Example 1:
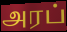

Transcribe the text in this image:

அரப்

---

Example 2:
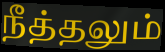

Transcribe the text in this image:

நீத்தலும்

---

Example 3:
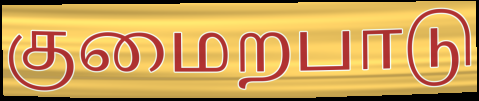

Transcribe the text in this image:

குமைறபாடு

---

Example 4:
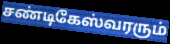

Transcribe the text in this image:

சண்டிகேஸ்வரரும்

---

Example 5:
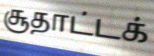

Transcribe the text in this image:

சூதாட்டக்